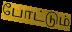
போட்டும்